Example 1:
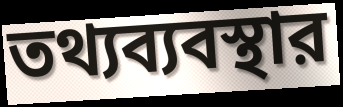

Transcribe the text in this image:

তথ্যব্যবস্থার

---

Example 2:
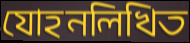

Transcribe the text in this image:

যোহনলিখিত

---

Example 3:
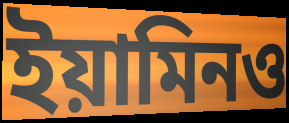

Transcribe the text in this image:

ইয়ামিনও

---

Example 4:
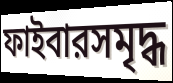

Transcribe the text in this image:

ফাইবারসমৃদ্ধ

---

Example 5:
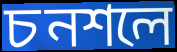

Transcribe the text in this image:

চনশলে